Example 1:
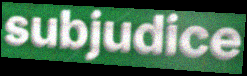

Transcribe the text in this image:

subjudice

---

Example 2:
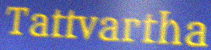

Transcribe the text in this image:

Tattvartha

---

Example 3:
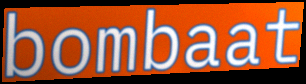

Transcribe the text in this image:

bombaat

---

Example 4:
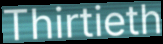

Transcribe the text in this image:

Thirtieth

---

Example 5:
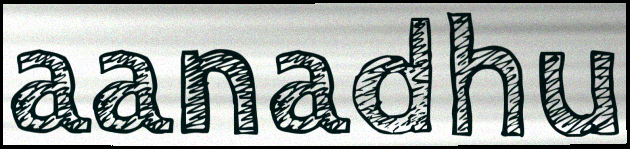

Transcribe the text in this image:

aanadhu